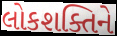
લોકશક્તિને